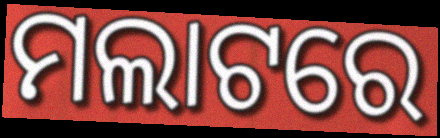
ମଲାଟରେ